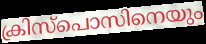
ക്രിസ്പൊസിനെയും